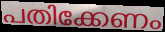
പതിക്കേണം